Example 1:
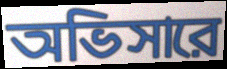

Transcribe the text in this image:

অভিসারে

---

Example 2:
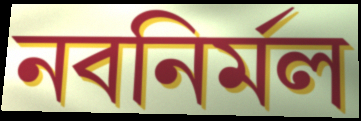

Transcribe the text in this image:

নবনির্মল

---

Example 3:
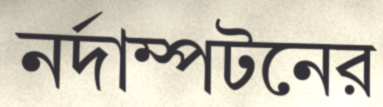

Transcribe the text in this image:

নর্দাম্পটনের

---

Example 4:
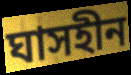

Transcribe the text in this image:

ঘাসহীন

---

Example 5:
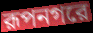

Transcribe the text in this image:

রূপনগরে